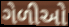
ગેળીઓ